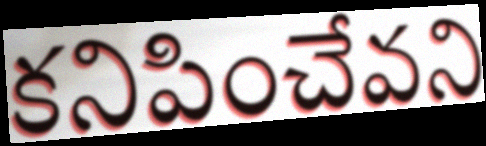
కనిపించేవని